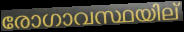
രോഗാവസ്ഥയില്